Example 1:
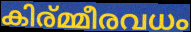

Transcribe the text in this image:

കിര്മ്മീരവധം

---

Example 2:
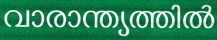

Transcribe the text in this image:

വാരാന്ത്യത്തിൽ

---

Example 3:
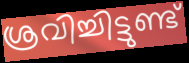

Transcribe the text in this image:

ശ്രവിച്ചിട്ടുണ്ട്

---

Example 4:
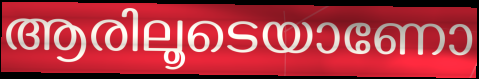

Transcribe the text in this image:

ആരിലൂടെയാണോ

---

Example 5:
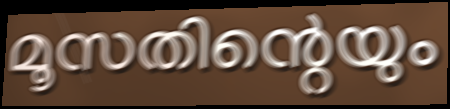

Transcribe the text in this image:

മൂസതിന്റെയും